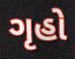
ગૃહો